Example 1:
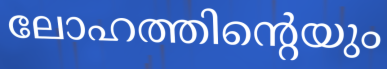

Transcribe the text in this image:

ലോഹത്തിന്റെയും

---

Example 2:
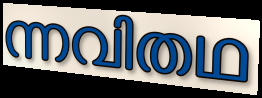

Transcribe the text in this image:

ന്നവിതഥ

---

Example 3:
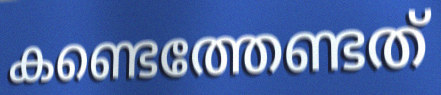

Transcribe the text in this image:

കണ്ടെത്തേണ്ടത്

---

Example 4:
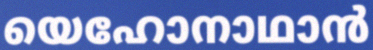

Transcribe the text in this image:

യെഹോനാഥാൻ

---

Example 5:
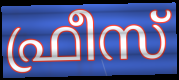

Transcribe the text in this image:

ഫ്രീസ്